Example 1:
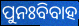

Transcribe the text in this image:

ପୁନଃବିବାହ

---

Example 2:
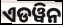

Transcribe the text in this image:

ଏଡୱିନ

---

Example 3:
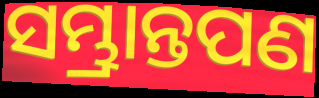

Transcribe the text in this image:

ସମ୍ଭ୍ରାନ୍ତପଣ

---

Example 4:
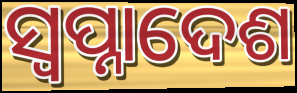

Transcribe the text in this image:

ସ୍ଵପ୍ନାଦେଶ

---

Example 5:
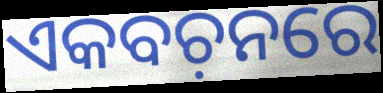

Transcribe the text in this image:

ଏକବଚ଼ନରେ